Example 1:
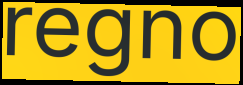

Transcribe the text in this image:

regno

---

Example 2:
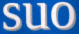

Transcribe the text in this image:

suo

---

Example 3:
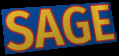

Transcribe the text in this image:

SAGE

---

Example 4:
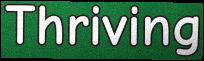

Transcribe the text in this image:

Thriving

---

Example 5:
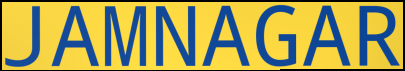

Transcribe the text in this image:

JAMNAGAR